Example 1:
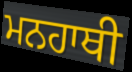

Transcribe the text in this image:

ਮਨਹਾਥੀ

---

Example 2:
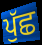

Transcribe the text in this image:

ਪੁੱਛ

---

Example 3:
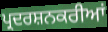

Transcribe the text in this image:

ਪ੍ਰਦਰਸ਼ਨਕਰੀਆਂ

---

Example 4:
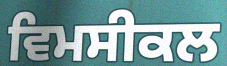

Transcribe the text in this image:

ਵਿਮਸੀਕਲ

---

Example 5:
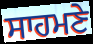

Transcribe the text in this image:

ਸਾਹਮਣੇ